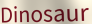
Dinosaur